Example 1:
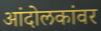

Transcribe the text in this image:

आंदोलकांवर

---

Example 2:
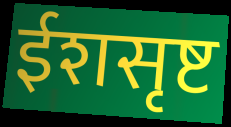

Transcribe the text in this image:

ईशसृष्ट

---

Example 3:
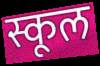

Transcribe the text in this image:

स्कूल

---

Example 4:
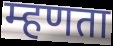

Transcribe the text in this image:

म्हणता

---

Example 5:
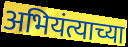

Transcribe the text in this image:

अभियंत्याच्या